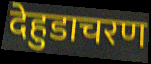
देहुडाचरण